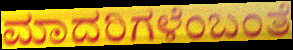
ಮಾದರಿಗಳೆಂಬಂತೆ